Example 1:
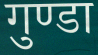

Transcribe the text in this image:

गुण्डा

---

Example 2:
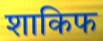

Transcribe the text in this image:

शाकिफ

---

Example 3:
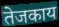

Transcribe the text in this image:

तेजकाय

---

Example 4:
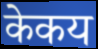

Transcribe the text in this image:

केकय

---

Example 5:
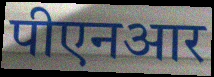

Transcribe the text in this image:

पीएनआर